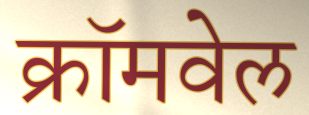
क्रॉमवेल